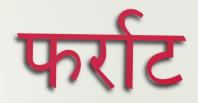
फर्राट